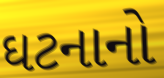
ઘટનાનો